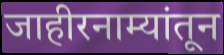
जाहीरनाम्यांतून